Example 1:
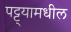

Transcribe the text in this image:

पट्ट्यामधील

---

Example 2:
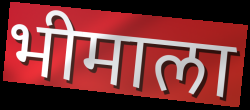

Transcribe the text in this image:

भीमाला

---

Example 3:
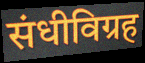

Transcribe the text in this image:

संधीविग्रह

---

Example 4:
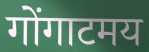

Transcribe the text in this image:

गोंगाटमय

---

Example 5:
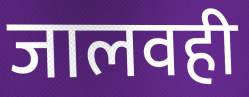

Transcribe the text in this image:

जालवही